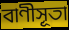
বাণীসূতা